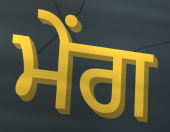
ਮੇਂਗ